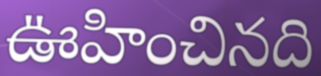
ఊహించినది